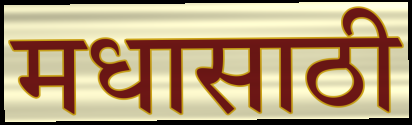
मधासाठी